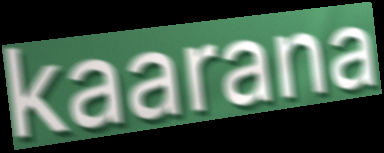
kaarana